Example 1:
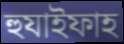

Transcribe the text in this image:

হুযাইফাহ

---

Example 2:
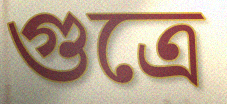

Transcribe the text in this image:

গুত্রে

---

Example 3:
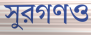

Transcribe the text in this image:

সুরগণও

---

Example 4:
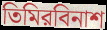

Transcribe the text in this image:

তিমিরবিনাশ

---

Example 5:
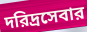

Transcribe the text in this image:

দরিদ্রসেবার